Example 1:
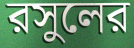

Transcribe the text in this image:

রসুলের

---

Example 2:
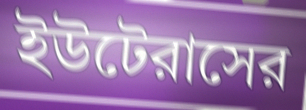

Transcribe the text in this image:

ইউটেরাসের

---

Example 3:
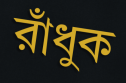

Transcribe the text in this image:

রাঁধুক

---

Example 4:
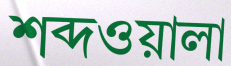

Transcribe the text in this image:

শব্দওয়ালা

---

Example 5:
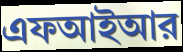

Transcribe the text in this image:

এফআইআর